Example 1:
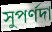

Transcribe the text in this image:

সুপর্ণদা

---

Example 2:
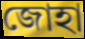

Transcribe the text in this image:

জোহা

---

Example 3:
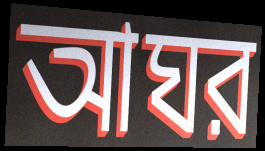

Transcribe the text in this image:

আঘর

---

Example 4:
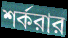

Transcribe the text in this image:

শর্করার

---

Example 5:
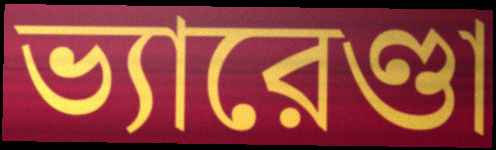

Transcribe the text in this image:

ভ্যারেণ্ডা